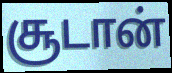
சூடான்